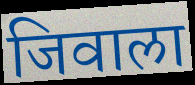
जिवाला